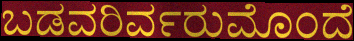
ಬಡವರಿರ್ವರುಮೊಂದೆ